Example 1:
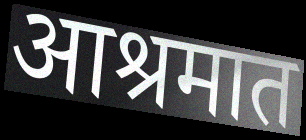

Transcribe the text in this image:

आश्रमात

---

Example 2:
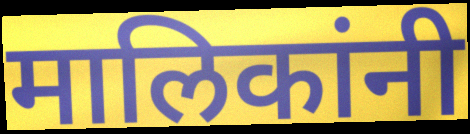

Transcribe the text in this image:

मालिकांनी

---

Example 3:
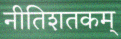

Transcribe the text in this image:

नीतिशतकम्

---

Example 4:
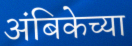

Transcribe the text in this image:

अंबिकेच्या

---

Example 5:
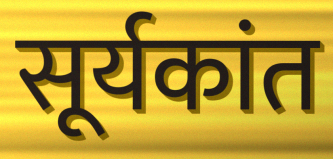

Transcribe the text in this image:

सूर्यकांत